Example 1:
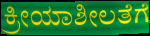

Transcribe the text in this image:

ಕ್ರೀಯಾಶೀಲತೆಗೆ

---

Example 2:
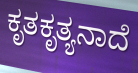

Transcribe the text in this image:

ಕೃತಕೃತ್ಯನಾದೆ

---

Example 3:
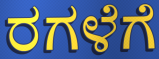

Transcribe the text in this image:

ರಗಳೆಗೆ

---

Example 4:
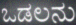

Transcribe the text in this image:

ಒಡಲನು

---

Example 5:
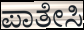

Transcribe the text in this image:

ಪಾತೇಸಿ